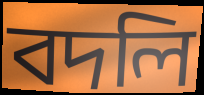
বদলি